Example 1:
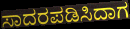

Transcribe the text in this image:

ಸಾದರಪಡಿಸಿದಾಗ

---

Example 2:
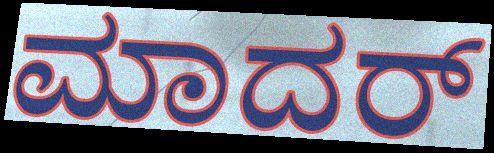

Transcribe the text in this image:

ಮಾದರ್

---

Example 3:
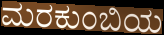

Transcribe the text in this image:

ಮರಕುಂಬಿಯ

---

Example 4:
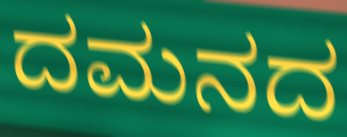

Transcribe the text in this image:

ದಮನದ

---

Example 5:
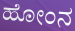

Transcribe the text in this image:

ಹೋಂನ